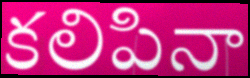
కలిపినా